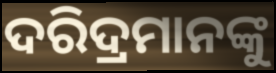
ଦରିଦ୍ରମାନଙ୍କୁ